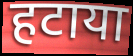
हटाया